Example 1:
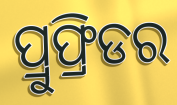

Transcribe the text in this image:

ପ୍ରୁଫ୍ରିଡର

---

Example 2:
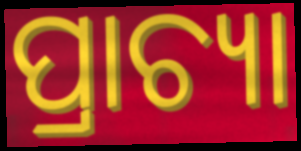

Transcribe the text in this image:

ପ୍ରାଚ୍ୟା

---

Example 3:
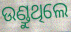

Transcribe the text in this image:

ଉଣ୍ଡୁଥିଲେ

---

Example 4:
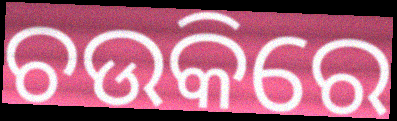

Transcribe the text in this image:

ଚଉକିରେ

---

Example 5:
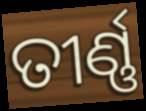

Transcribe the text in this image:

ତୀର୍ଣ୍ଣ